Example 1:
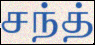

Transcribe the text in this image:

சந்த்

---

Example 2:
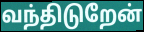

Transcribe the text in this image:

வந்திடுறேன்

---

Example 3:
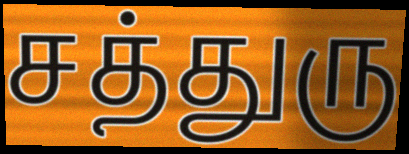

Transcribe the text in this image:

சத்துரு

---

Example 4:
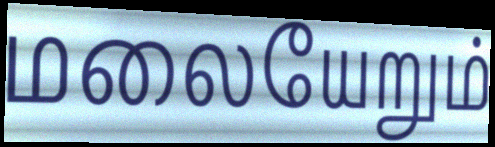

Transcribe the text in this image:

மலையேறும்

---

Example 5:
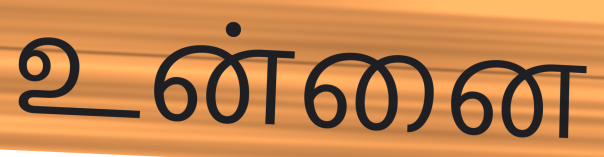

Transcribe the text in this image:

உன்னை